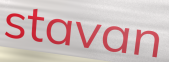
stavan